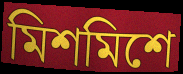
মিশমিশে